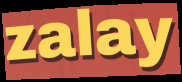
zalay